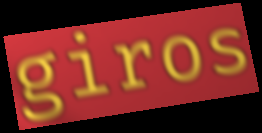
giros